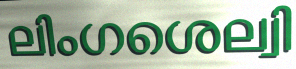
ലിംഗശെല്വി